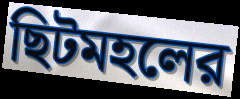
ছিটমহলের